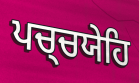
ਪਚ੍ਚਯੇਹਿ